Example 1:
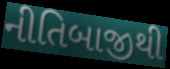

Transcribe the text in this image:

નીતિબાજીથી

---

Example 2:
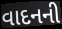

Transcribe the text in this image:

વાદનની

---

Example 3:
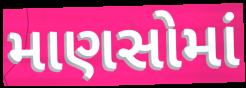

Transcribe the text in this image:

માણસોમાં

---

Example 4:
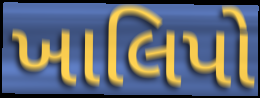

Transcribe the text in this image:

ખાલિપો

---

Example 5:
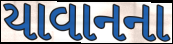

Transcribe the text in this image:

યાવાનના